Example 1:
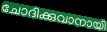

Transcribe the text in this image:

ചോദിക്കുവാനായി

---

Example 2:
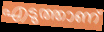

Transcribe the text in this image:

എടുത്താണ്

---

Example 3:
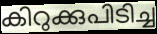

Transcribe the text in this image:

കിറുക്കുപിടിച്ച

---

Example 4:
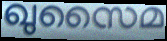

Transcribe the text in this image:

ഖുസൈമ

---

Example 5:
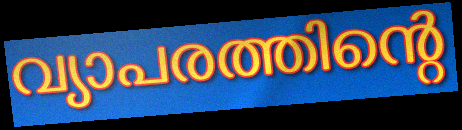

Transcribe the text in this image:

വ്യാപരത്തിന്റെ